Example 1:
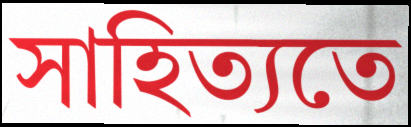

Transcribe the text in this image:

সাহিত্য়তে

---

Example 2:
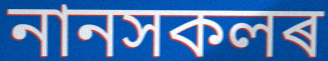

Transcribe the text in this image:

নানসকলৰ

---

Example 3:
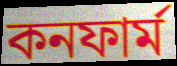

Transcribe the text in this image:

কনফাৰ্ম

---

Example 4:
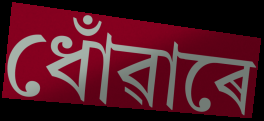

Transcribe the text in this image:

ধোঁৱাৰে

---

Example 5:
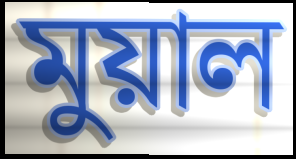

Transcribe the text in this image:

মুয়াল